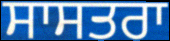
ਸਾਸਤਰਾ